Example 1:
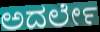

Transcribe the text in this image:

ಅದರ್ಲೇ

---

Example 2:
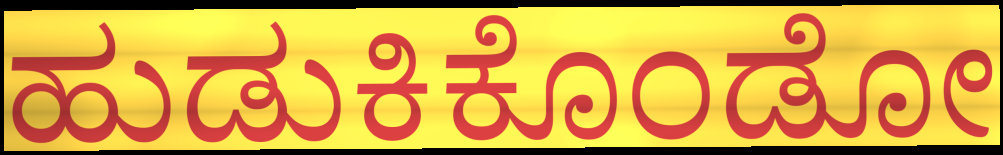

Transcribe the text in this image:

ಹುಡುಕಿಕೊಂಡೋ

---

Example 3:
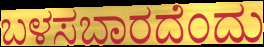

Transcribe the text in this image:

ಬಳಸಬಾರದೆಂದು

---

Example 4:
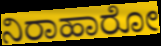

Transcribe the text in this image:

ನಿರಾಹಾರೋ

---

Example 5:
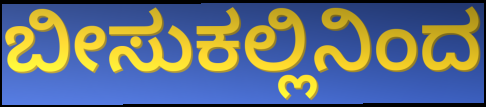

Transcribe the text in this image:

ಬೀಸುಕಲ್ಲಿನಿಂದ